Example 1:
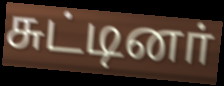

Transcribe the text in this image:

சுட்டினர்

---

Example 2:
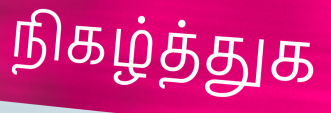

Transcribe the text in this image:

நிகழ்த்துக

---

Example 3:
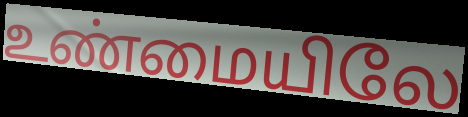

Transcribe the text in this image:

உண்மையிலே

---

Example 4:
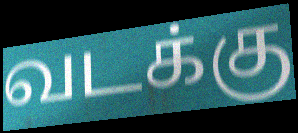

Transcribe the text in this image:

வடக்கு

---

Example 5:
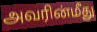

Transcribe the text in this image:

அவரின்மீது